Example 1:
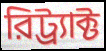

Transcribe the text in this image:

রিট্র্যাক্ট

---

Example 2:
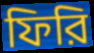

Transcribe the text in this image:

ফিরি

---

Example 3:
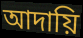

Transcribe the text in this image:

আদায়ি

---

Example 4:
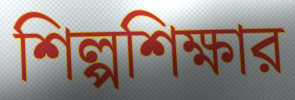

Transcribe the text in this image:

শিল্পশিক্ষার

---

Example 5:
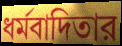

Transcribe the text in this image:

ধর্মবাদিতার